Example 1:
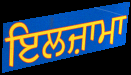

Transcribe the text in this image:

ਇਲਜ਼ਾਮਾ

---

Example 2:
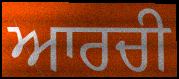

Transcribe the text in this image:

ਆਰਚੀ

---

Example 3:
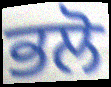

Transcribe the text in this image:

ਭਲੋ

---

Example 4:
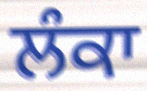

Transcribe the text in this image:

ਲੰਕਾ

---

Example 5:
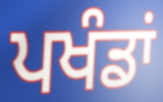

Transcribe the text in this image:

ਪਖੰਡਾਂ